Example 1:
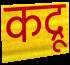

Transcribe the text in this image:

कद्रू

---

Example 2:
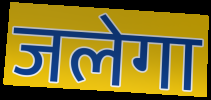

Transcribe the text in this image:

जलेगा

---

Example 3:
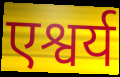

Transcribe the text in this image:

एश्वर्य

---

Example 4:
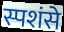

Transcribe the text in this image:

स्पशंसे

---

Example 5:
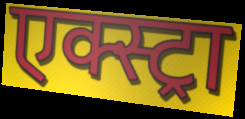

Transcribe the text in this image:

एक्स्ट्रा